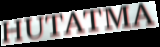
HUTATMA